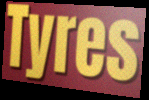
Tyres